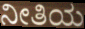
ನೀತಿಯ